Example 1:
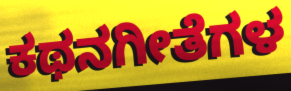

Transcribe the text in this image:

ಕಥನಗೀತೆಗಳ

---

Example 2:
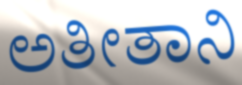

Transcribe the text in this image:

ಅತೀತಾನಿ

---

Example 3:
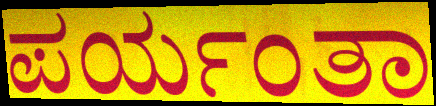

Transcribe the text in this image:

ಪರ್ಯಂತಾ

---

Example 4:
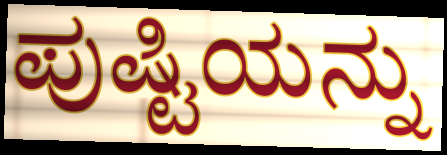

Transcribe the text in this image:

ಪುಷ್ಟಿಯನ್ನು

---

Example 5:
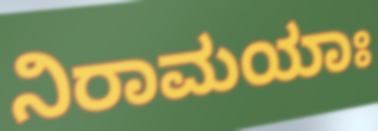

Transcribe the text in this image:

ನಿರಾಮಯಾಃ